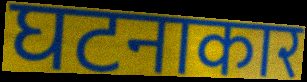
घटनाकार